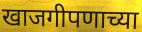
खाजगीपणाच्या